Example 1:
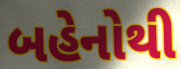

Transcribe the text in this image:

બહેનોથી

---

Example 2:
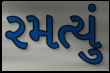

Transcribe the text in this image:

રમત્યું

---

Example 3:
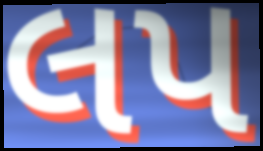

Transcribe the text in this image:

લપ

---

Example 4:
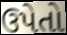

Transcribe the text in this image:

ઉપેતો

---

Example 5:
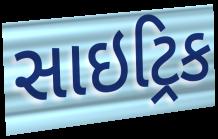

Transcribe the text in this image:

સાઇટ્રિક